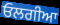
ਓਲਗੀਆ